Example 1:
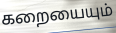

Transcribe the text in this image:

கறையையும்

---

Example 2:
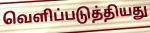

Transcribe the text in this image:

வெளிப்படுத்தியது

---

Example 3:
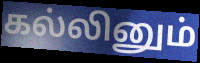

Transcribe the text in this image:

கல்லினும்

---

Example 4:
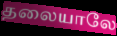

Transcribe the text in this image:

தலையாலே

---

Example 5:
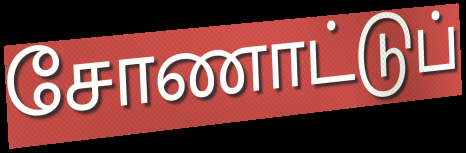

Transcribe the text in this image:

சோணாட்டுப்